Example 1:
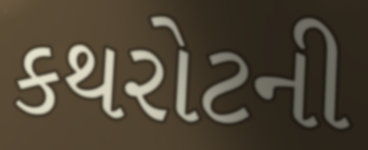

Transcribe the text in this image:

કથરોટની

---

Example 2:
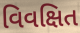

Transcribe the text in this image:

વિવક્ષિત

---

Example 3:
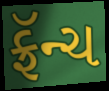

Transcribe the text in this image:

ફ્રૅન્ચ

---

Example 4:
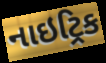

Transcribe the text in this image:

નાઇટ્રિક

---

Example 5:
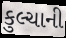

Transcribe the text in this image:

કુલ્ચાની